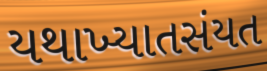
યથાખ્યાતસંયત